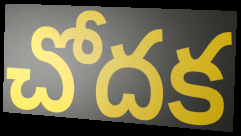
చోదక